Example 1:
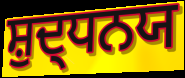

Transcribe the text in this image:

ਸ਼ੁਦ੍ਧਨਯ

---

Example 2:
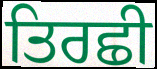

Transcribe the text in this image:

ਤਿਰਛੀ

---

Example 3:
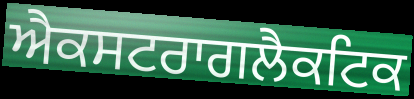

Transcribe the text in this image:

ਐਕਸਟਰਾਗਲੈਕਟਿਕ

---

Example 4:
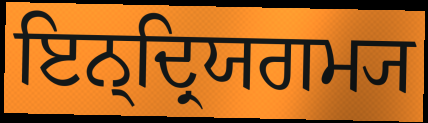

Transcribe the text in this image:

ਇਨ੍ਦ੍ਰਿਯਗਮ੍ਯ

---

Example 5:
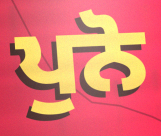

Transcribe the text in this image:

ਪੁਨੋ